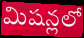
మిషన్లలో